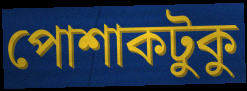
পোশাকটুকু